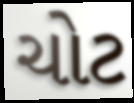
ચોટ